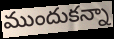
ముందుకన్నా